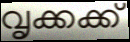
വൃക്കക്ക്